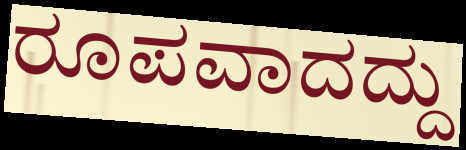
ರೂಪವಾದದ್ದು